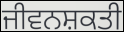
ਜੀਵਨਸ਼ਕਤੀ